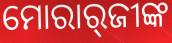
ମୋରାର୍‌ଜୀଙ୍କ